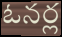
ఓనర్ల